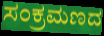
ಸಂಕ್ರಮಣದ